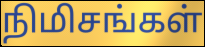
நிமிசங்கள்